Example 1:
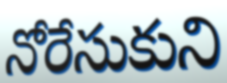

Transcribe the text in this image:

నోరేసుకుని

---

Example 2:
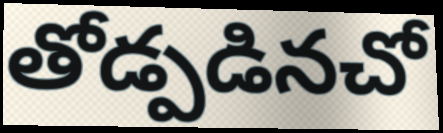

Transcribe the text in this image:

తోడ్పడినచో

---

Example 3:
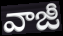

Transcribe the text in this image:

వాజీ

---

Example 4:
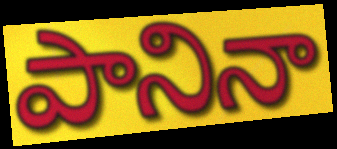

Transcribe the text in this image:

పానినా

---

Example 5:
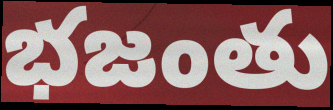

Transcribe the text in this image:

భజంతు